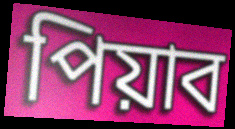
পিয়াব